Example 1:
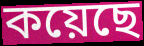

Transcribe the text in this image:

কয়েছে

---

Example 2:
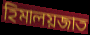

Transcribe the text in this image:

হিমালয়জাত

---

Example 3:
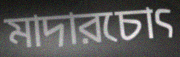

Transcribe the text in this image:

মাদারচোৎ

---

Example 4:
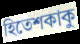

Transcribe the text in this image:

হিতেশকাকু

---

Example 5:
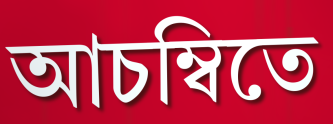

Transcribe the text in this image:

আচম্বিতে